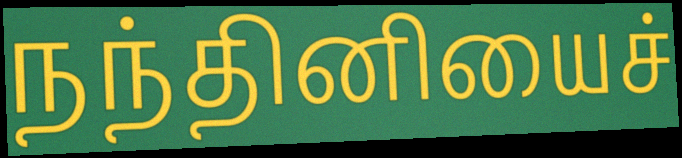
நந்தினியைச்